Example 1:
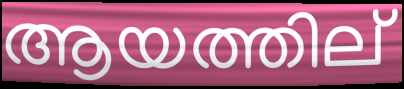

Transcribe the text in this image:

ആയത്തില്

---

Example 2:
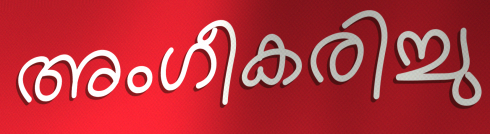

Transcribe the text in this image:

അംഗീകരിച്ചു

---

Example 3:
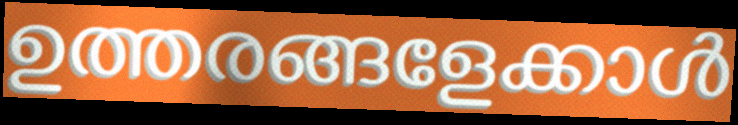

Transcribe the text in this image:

ഉത്തരങ്ങളേക്കാൾ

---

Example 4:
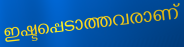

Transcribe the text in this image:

ഇഷ്ടപ്പെടാത്തവരാണ്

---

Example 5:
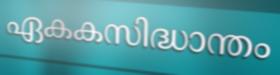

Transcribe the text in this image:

ഏകകസിദ്ധാന്തം